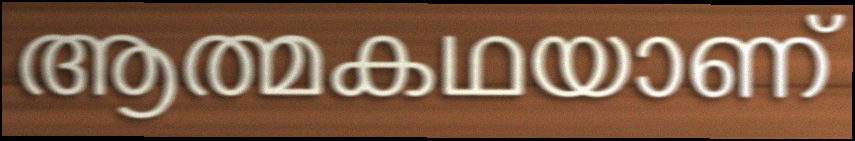
ആത്മകഥയാണ്